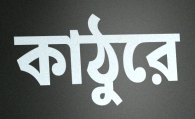
কাঠুরে